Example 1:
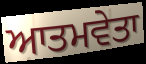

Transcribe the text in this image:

ਆਤਮਵੇਤਾ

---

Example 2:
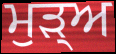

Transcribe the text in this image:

ਮੁਡ਼੍ਅ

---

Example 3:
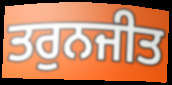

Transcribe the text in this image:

ਤਰੁਨਜੀਤ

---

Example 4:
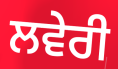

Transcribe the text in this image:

ਲਵੇਰੀ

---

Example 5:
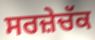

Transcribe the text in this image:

ਸਰਜ਼ੇਚੱਕ